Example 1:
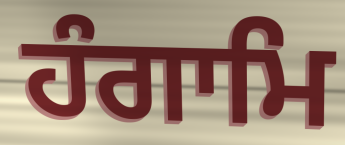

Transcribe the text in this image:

ਹੰਗਾਮਿ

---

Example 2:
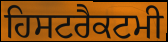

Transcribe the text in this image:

ਹਿਸਟਰੈਕਟਮੀ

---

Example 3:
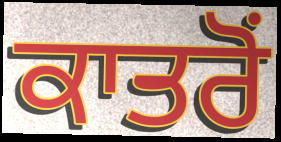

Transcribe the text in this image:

ਕਾਤਰੋੰ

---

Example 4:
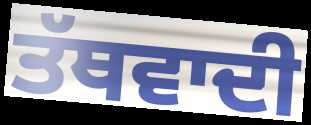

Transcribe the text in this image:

ਤੱਥਵਾਦੀ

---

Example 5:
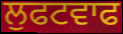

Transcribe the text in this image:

ਲੁਫਟਵਾਫ